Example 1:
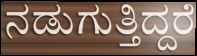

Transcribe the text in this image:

ನಡುಗುತ್ತಿದ್ದರೆ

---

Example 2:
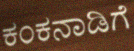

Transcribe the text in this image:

ಕಂಕನಾಡಿಗೆ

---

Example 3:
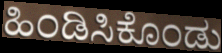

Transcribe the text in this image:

ಹಿಂಡಿಸಿಕೊಂಡು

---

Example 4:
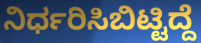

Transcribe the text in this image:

ನಿರ್ಧರಿಸಿಬಿಟ್ಟಿದ್ದೆ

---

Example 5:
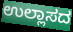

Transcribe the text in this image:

ಉಲ್ಲಾಸದ